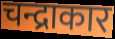
चन्द्राकार